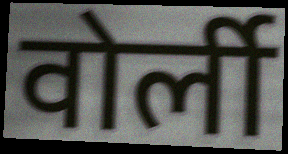
वोर्ली